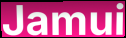
Jamui